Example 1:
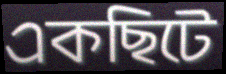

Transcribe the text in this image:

একছিটে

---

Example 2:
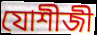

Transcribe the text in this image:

যোশীজী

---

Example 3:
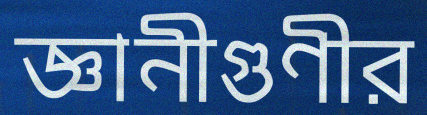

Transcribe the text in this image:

জ্ঞানীগুণীর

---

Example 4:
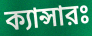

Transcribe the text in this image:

ক্যান্সারঃ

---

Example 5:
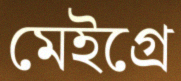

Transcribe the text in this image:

মেইগ্রে